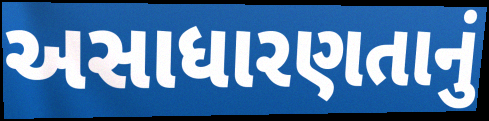
અસાધારણતાનું